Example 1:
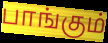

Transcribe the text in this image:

பாங்கும்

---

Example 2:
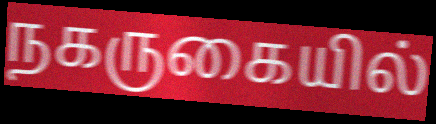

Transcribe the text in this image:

நகருகையில்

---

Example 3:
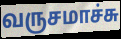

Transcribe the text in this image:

வருசமாச்சு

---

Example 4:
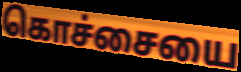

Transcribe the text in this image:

கொச்சையை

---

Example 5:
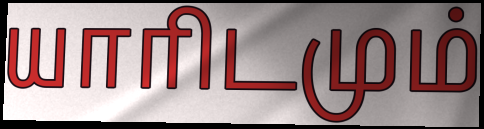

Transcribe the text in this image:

யாரிடமும்